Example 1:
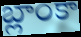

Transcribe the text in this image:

బ్లాంకా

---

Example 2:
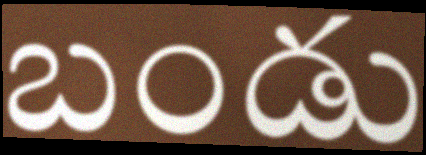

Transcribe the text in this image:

బండు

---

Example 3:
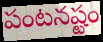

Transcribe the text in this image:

పంటనష్టం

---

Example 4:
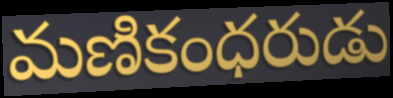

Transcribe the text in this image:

మణికంధరుడు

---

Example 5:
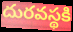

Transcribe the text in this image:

దురవస్థకి